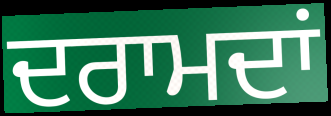
ਦਰਾਮਦਾਂ